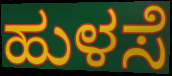
ಹುಳಸೆ